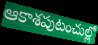
ఆకాశపుటంచుల్లో